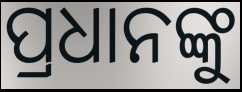
ପ୍ରଧାନଙ୍କୁ